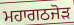
ਮਹਾਗਠਜੋੜ